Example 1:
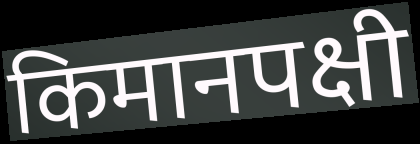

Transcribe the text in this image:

किमानपक्षी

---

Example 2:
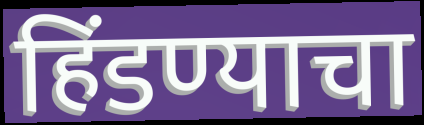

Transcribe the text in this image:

हिंडण्याचा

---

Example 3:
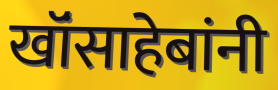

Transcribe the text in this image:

खॉंसाहेबांनी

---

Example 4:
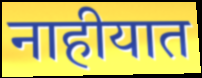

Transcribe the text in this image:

नाहीयात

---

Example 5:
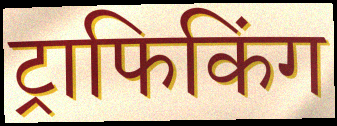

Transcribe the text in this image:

ट्राफिकिंग